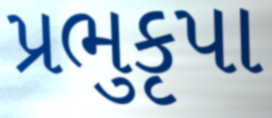
પ્રભુકૃપા